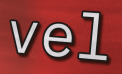
vel